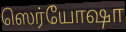
ஸெர்யோஷா